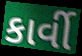
કાર્વી